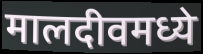
मालदीवमध्ये